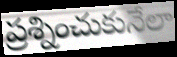
ప్రశ్నించుకునేలా